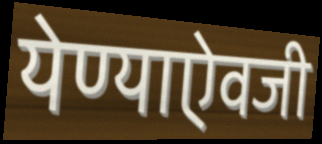
येण्याऐवजी